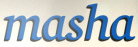
masha